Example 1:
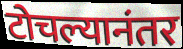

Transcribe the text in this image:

टोचल्यानंतर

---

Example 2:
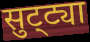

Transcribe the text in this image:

सुट्‌ट्या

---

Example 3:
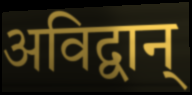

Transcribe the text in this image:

अविद्वान्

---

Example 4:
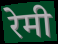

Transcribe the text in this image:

रेमी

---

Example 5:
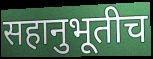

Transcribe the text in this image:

सहानुभूतीच